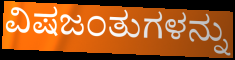
ವಿಷಜಂತುಗಳನ್ನು